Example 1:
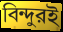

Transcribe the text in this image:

বিন্দুরই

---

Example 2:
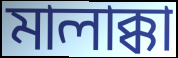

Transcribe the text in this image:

মালাক্কা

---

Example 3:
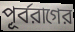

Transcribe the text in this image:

পূর্বরাগের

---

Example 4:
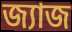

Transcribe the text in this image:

জ্যাজ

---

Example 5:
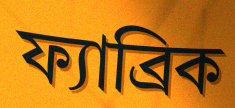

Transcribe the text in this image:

ফ্যাব্রিক